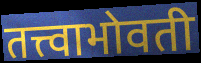
तत्त्वाभोवती